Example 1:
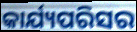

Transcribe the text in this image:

କାର୍ଯ୍ୟପରିସର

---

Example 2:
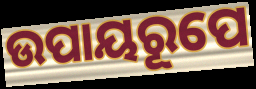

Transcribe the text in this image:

ଉପାୟରୂପେ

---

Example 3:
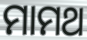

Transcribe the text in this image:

ମାମଥ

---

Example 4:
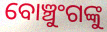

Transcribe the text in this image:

ବୋଞ୍ଚୁଂଗଙ୍କୁ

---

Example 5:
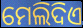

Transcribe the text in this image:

ମେଲିଦିଏ